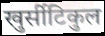
खुर्सीटिकुल